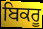
ਬਿਕਰੂ